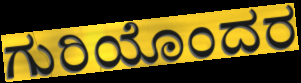
ಗುರಿಯೊಂದರ